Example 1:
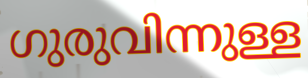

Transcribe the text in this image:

ഗുരുവിന്നുള്ള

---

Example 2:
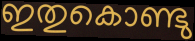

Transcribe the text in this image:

ഇതുകൊണ്ടു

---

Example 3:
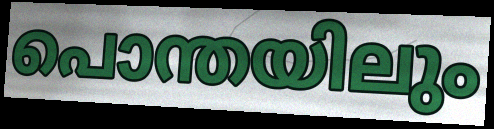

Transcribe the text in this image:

പൊന്തയിലും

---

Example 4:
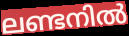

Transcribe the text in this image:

ലണ്ടനിൽ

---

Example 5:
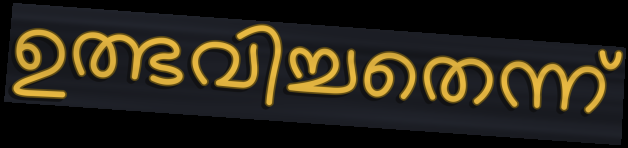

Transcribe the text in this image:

ഉത്ഭവിച്ചതെന്ന്